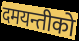
दमयन्तीको